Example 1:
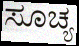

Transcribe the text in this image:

ಸೂಚ್ಯ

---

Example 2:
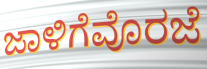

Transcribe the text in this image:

ಜಾಳಿಗೆವೊರಜೆ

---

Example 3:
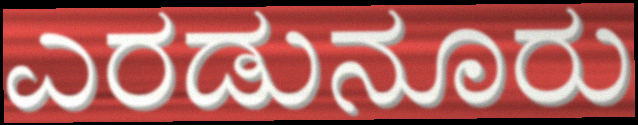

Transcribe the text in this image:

ಎರಡುನೂರು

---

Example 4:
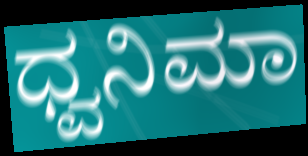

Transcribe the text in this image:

ಧ್ವನಿಮಾ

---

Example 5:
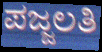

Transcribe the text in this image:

ಪಜ್ಜಲತಿ